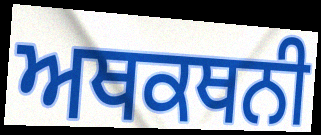
ਅਥਕਥਨੀ